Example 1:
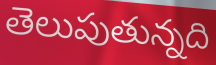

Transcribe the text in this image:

తెలుపుతున్నది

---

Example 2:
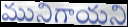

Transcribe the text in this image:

మునిగాయని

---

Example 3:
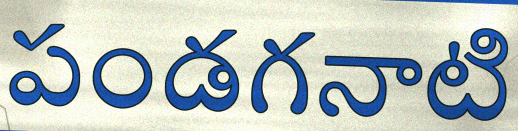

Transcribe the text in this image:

పండగనాటి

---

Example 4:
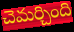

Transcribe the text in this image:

చెమర్చింది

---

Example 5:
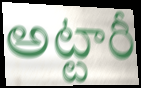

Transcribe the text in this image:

అట్టారీ